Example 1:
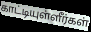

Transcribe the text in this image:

காட்டியுள்ளீர்கள்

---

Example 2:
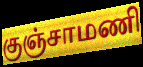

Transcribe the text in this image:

குஞ்சாமணி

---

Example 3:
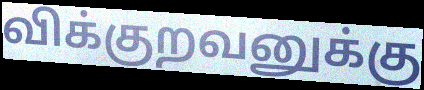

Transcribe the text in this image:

விக்குறவனுக்கு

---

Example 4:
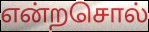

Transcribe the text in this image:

என்றசொல்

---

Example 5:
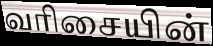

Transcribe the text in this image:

வரிசையின்